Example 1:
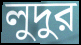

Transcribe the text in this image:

লুদুর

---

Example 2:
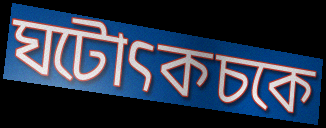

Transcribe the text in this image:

ঘটোৎকচকে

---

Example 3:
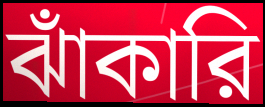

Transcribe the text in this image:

ঝাঁকারি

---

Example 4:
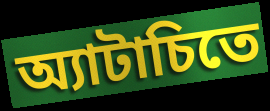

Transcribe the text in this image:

অ্যাটাচিতে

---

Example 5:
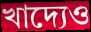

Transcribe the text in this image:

খাদ্যেও